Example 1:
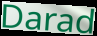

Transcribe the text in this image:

Darad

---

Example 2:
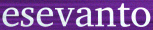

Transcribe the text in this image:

esevanto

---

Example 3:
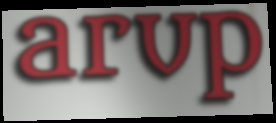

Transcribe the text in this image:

arup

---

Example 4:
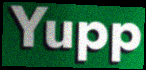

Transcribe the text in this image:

Yupp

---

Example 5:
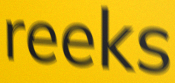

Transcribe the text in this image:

reeks